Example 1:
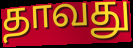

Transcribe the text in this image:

தாவது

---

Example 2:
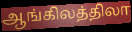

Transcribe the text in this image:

ஆங்கிலத்திலா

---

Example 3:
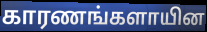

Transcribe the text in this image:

காரணங்களாயின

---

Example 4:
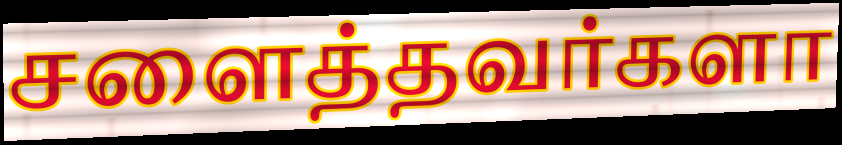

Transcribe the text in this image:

சளைத்தவர்களா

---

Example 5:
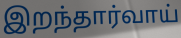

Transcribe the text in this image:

இறந்தார்வாய்